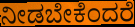
ನೀಡಬೇಕೆಂದರೆ